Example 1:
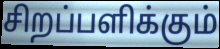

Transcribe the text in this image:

சிறப்பளிக்கும்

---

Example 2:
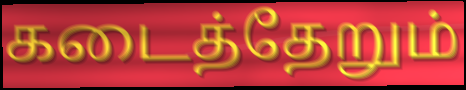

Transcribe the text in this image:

கடைத்தேறும்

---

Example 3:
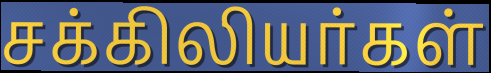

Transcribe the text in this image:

சக்கிலியர்கள்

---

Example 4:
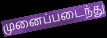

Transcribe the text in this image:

முனைப்படைந்து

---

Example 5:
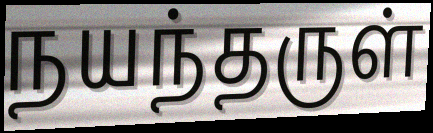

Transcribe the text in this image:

நயந்தருள்